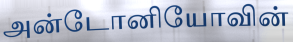
அன்டோனியோவின்